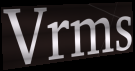
Vrms